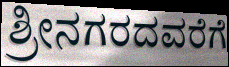
ಶ್ರೀನಗರದವರೆಗೆ